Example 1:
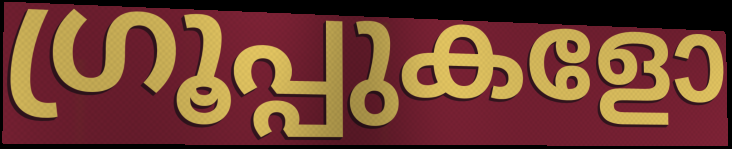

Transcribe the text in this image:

ഗ്രൂപ്പുകളോ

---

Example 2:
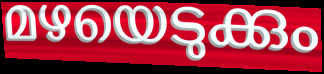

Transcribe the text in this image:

മഴയെടുക്കും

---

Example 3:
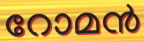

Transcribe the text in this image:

റോമൻ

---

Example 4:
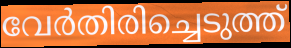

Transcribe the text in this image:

വേർതിരിച്ചെടുത്ത്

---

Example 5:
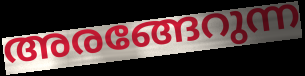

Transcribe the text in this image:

അരങ്ങേറുന്ന